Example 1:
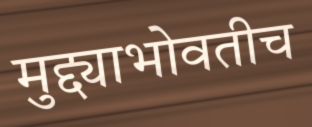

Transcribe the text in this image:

मुद्द्याभोवतीच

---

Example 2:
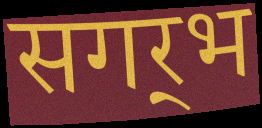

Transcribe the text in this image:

सगर्भ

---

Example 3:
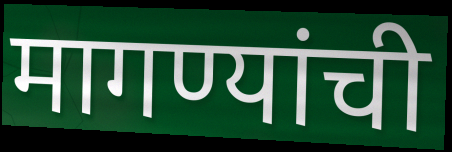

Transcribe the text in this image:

मागण्यांची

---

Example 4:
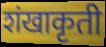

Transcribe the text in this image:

शंखाकृती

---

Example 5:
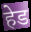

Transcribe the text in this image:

हेड